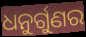
ଧନୁର୍ଗୁଣର